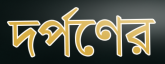
দর্পণের